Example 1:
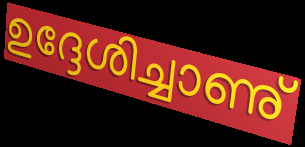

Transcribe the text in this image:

ഉദ്ദേശിച്ചാണു്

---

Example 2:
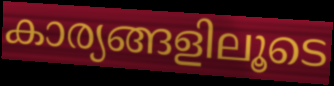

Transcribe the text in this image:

കാര്യങ്ങളിലൂടെ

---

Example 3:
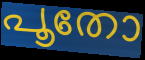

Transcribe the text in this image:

പൂതോ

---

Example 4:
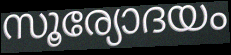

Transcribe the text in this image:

സൂര്യോദയം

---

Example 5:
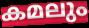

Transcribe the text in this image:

കമലും